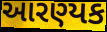
આરણ્યક